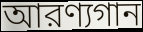
আরণ্যগান